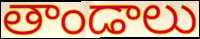
తాండాలు